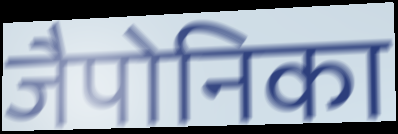
जैपोनिका